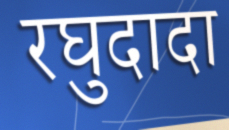
रघुदादा